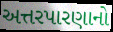
અત્તરપારણાનો